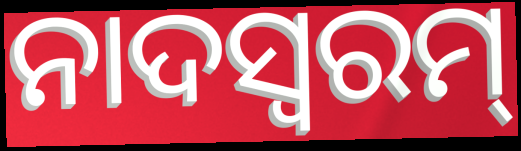
ନାଦସ୍ଵରମ୍